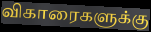
விகாரைகளுக்கு